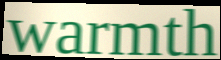
warmth